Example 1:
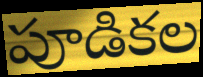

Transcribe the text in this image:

పూడికల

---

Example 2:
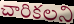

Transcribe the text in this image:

చారికలని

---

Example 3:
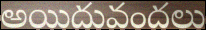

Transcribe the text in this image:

అయిదువందలు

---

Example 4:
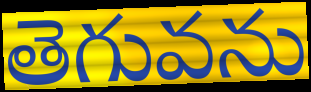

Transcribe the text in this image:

తెగువను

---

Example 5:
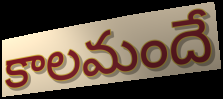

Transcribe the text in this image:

కాలమందే